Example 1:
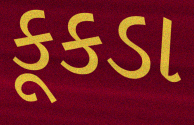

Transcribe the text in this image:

કૂકડા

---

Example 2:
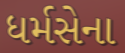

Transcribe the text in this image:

ધર્મસેના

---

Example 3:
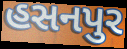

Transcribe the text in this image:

હસનપુર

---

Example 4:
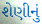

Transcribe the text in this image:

શેણીનું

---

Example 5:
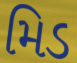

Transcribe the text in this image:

મિડ